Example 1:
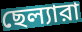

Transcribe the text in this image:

ছেল্যারা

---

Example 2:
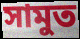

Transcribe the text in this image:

সামুত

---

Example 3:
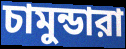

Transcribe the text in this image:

চামুন্ডারা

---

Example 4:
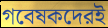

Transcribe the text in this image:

গবেষকদেরই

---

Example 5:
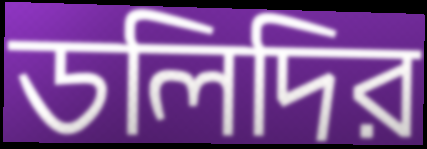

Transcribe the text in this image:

ডলিদির